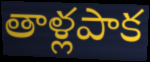
తాళ్లపాక